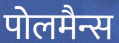
पोलमैन्स